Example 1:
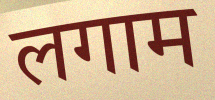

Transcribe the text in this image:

लगाम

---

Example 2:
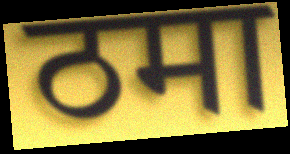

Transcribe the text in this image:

ठमा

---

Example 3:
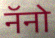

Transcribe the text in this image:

नॅनो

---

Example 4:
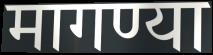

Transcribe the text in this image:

मागण्या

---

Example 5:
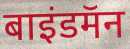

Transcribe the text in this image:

बाइंडमॅन